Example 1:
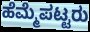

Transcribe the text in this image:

ಹೆಮ್ಮೆಪಟ್ಟರು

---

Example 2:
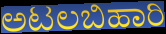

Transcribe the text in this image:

ಅಟಲಬಿಹಾರಿ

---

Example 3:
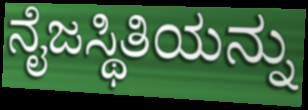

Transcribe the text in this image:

ನೈಜಸ್ಥಿತಿಯನ್ನು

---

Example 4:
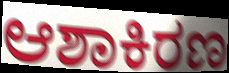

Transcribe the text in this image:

ಆಶಾಕಿರಣ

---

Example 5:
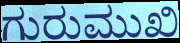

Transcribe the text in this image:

ಗುರುಮುಖಿ